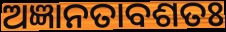
ଅଜ୍ଞାନତାବଶତଃ